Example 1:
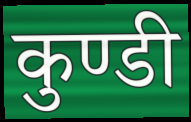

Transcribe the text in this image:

कुण्डी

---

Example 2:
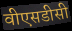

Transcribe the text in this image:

वीएसडीसी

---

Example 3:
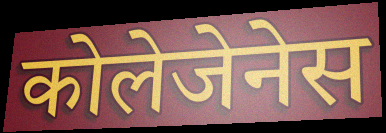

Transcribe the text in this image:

कोलेजेनेस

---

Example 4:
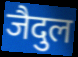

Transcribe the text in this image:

जैदुल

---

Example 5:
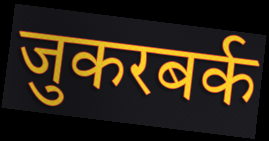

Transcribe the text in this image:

जुकरबर्क